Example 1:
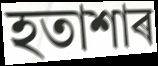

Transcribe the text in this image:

হতাশাৰ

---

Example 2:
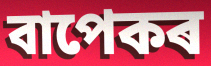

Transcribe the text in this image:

বাপেকৰ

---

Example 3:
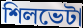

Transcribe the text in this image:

শিলভেটা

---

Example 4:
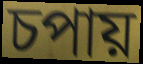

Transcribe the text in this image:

চপায়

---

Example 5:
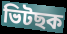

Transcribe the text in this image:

ভিটছক